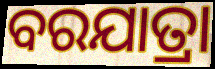
ବରଯାତ୍ରା